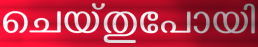
ചെയ്തുപോയി